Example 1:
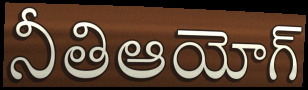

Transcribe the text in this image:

నీతిఆయోగ్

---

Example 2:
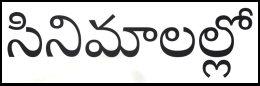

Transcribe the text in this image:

సినిమాలల్లో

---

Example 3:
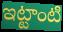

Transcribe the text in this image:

ఇట్టాంటి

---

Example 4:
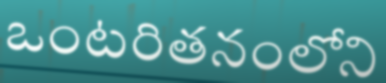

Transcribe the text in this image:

ఒంటరితనంలోని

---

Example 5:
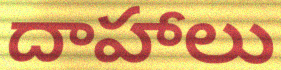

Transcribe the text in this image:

దాహాలు